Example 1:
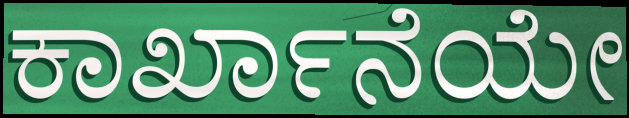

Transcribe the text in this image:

ಕಾರ್ಖಾನೆಯೇ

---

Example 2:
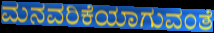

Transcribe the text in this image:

ಮನವರಿಕೆಯಾಗುವಂತೆ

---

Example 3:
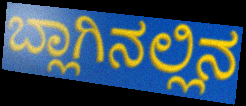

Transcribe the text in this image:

ಬ್ಲಾಗಿನಲ್ಲಿನ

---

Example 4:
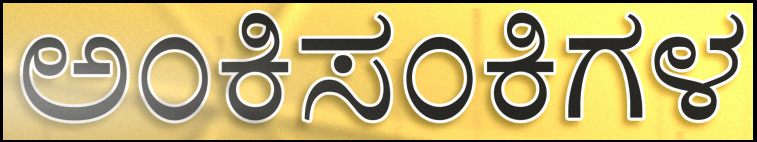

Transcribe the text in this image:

ಅಂಕಿಸಂಕಿಗಳ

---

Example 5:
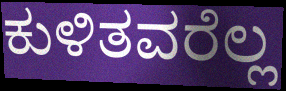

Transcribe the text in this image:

ಕುಳಿತವರೆಲ್ಲ